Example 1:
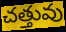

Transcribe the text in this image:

చత్తువు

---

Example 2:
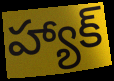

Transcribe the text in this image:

హ్యాక్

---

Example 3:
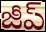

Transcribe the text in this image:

జీప్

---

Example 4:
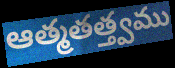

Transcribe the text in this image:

ఆత్మతత్త్వము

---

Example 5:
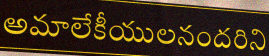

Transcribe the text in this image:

అమాలేకీయులనందరిని